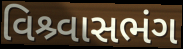
વિશ્ર્વાસભંગ